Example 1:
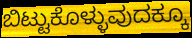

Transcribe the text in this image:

ಬಿಟ್ಟುಕೊಳ್ಳುವುದಕ್ಕೂ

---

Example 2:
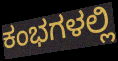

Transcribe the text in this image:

ಕಂಭಗಳಲ್ಲಿ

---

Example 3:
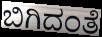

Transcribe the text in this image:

ಬಿಗಿದಂತೆ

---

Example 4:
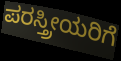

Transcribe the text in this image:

ಪರಸ್ತ್ರೀಯರಿಗೆ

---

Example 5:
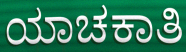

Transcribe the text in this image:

ಯಾಚಕಾತಿ